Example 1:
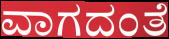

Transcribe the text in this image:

ವಾಗದಂತೆ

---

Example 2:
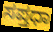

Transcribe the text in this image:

ಸಪ್ತಧಾ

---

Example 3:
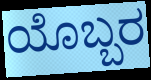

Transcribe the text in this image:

ಯೊಬ್ಬರ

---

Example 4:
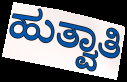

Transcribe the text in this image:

ಹುತ್ವಾತಿ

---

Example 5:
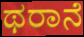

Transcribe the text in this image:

ಥರಾನೆ